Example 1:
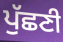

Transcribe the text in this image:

ਪੁੱਛਣੀ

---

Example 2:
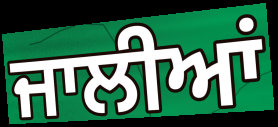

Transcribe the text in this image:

ਜਾਲੀਆਂ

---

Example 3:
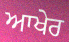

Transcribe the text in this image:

ਆਖੇਰ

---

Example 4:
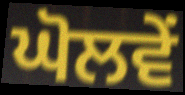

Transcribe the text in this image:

ਘੋਲਵੇਂ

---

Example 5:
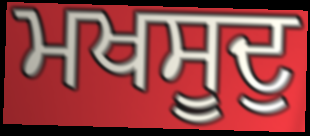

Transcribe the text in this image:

ਮਖਸੂਦੁ